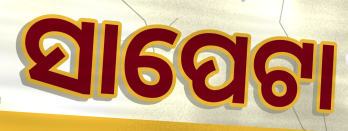
ସାପେଟା